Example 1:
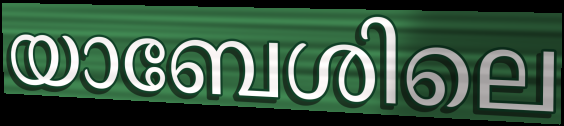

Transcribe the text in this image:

യാബേശിലെ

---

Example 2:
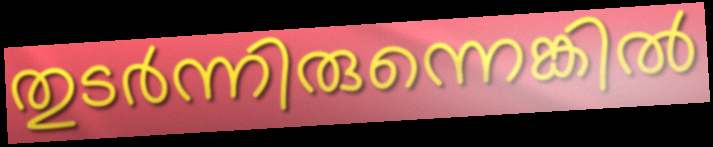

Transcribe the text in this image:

തുടർന്നിരുന്നെങ്കിൽ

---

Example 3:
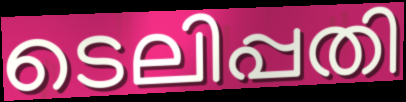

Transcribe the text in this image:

ടെലിപ്പതി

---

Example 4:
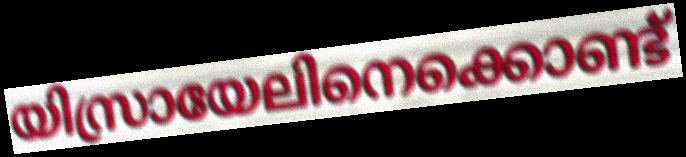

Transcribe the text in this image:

യിസ്രായേലിനെക്കൊണ്ട്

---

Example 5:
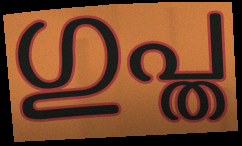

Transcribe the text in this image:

ഗുപ്ത